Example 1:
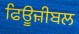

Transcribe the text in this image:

ਫਿਊਜ਼ੀਬਲ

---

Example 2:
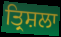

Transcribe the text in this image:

ਤ੍ਰਿਸ਼ਲਾ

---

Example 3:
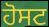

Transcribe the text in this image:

ਹੋਸਟ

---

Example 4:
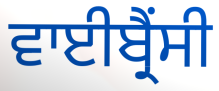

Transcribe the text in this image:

ਵਾਈਬ੍ਰੈਂਸੀ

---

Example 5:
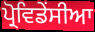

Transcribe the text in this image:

ਪ੍ਰੋਵਿਡੇਂਸੀਆ